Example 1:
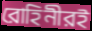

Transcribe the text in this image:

রোহিনীরই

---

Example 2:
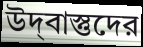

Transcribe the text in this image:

উদ্‌বাস্তুদের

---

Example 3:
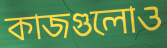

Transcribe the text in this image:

কাজগুলোও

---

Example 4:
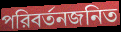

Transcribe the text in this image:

পরিবর্তনজনিত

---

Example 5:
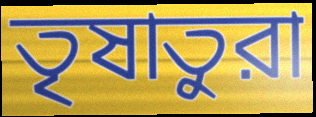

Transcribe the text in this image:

তৃষাতুরা